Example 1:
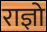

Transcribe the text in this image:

राज्ञो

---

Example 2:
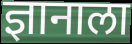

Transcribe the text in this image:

ज्ञानाला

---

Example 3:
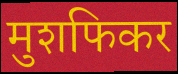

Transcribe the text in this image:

मुशफिकर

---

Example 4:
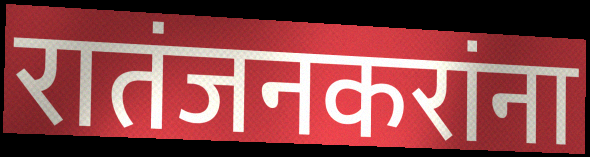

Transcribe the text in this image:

रातंजनकरांना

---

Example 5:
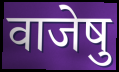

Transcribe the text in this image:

वाजेषु